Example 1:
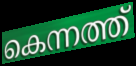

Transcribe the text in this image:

കെന്നത്ത്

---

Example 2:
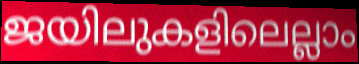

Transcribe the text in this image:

ജയിലുകളിലെല്ലാം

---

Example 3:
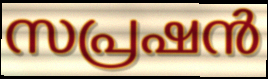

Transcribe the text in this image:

സപ്രഷൻ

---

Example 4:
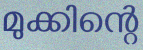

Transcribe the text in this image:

മുക്കിന്റെ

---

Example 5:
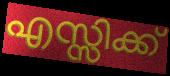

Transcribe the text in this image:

എസ്സിക്ക്